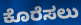
ಕೊರೆಸಲು